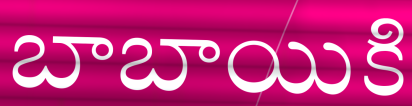
బాబాయికి